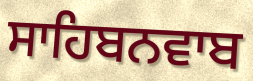
ਸਾਹਿਬਨਵਾਬ